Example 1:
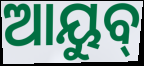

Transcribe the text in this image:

ଆୟୁବ୍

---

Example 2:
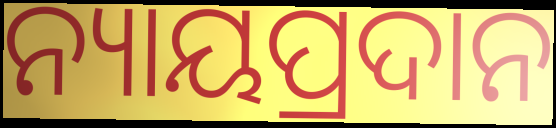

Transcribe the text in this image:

ନ୍ୟାୟପ୍ରଦାନ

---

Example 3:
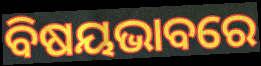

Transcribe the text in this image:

ବିଷୟଭାବରେ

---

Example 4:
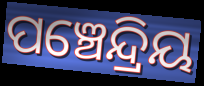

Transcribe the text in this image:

ପଞ୍ଚେନ୍ଦ୍ରିୟ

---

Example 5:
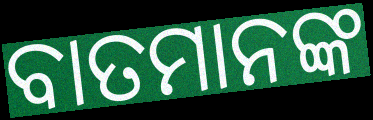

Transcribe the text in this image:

ବାତମାନଙ୍କ